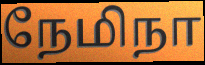
நேமிநா